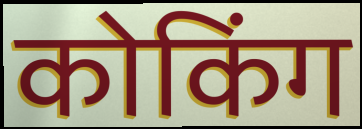
कोकिंग